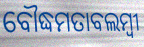
ବୌଦ୍ଧମତାବଲମ୍ବୀ